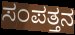
ಸಂಪತ್ತನ